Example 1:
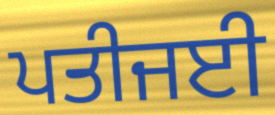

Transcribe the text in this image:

ਪਤੀਜਈ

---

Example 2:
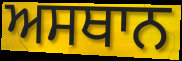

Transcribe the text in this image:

ਅਸਥਾਨ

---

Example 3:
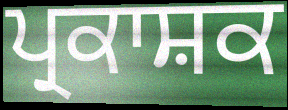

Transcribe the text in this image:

ਪ੍ਰਕਾਸ਼ਕ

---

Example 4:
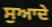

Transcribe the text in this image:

ਸੁਆਦੇ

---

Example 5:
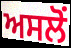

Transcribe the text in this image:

ਅਸਲੋਂ